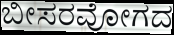
ಬೀಸರವೋಗದ